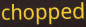
chopped